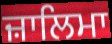
ਜ਼ਾਲਿਮਾ